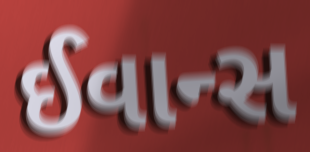
ઈવાન્સ